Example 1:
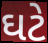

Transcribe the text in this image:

ઘટે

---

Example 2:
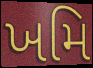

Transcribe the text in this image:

ખમિ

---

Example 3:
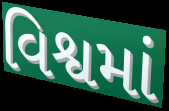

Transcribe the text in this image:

વિશ્વમાં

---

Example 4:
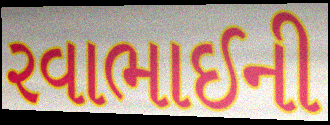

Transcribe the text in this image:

રવાભાઈની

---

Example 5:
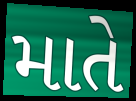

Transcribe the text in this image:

માતે